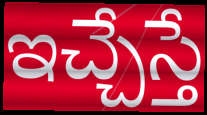
ఇచ్చేస్తే